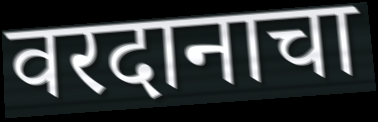
वरदानाचा